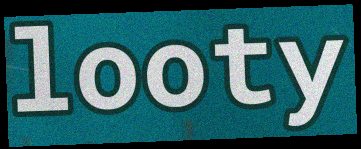
looty